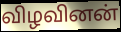
விழவினன்